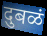
दुबळं